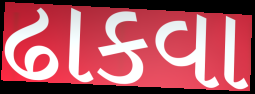
ઢાકવા